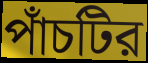
পাঁচটির